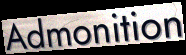
Admonition